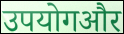
उपयोगऔर